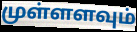
முள்ளளவும்